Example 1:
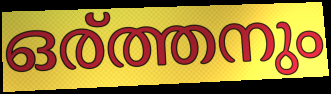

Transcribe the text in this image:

ഒര്ത്തനും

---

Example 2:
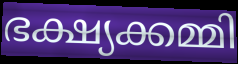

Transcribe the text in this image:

ഭക്ഷ്യക്കമ്മി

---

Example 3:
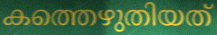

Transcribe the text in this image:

കത്തെഴുതിയത്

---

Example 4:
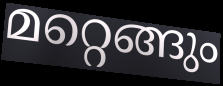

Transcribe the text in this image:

മറ്റെങ്ങും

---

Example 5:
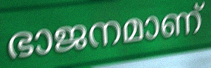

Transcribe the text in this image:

ഭാജനമാണ്